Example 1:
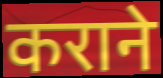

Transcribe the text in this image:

कराने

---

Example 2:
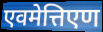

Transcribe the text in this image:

एवमेत्तिएण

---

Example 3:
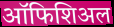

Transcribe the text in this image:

ऑफिशिअल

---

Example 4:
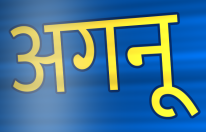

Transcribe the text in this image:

अगनू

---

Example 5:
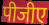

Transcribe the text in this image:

पीजीए